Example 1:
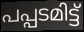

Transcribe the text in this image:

പപ്പടമിട്ട്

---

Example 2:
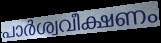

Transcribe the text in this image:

പാർശ്വവീക്ഷണം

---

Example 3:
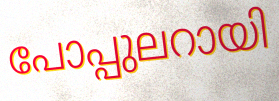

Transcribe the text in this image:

പോപ്പുലറായി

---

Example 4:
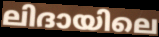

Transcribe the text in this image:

ലിദായിലെ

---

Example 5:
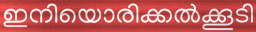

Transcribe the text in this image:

ഇനിയൊരിക്കൽക്കൂടി